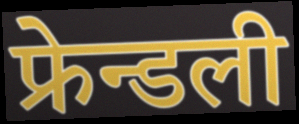
फ्रेन्डली